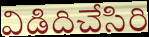
విడిదిచేసిరి